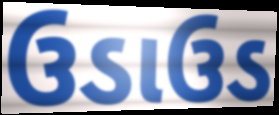
ઉડાઉડ